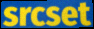
srcset